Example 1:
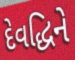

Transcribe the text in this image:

દેવદ્ધિને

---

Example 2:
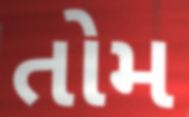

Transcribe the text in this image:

તોમ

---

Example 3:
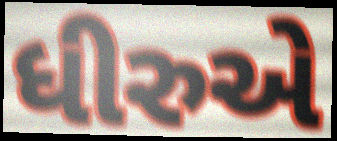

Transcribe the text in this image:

ધીરુએ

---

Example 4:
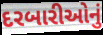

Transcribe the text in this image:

દરબારીઓનું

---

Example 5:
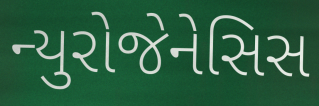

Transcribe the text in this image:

ન્યુરોજેનેસિસ